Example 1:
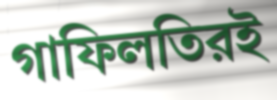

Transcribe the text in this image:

গাফিলতিরই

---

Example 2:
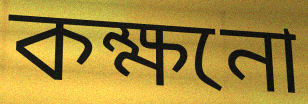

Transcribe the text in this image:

কক্ষনো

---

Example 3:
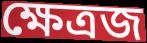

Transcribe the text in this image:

ক্ষেত্রজ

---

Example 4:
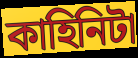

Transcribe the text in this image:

কাহিনিটা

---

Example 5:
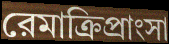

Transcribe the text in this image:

রেমাক্রিপ্রাংসা